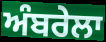
ਅੰਬਰੇਲਾ